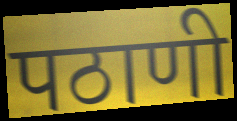
पठाणी